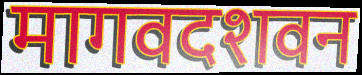
मागवदशवन